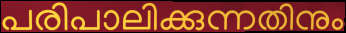
പരിപാലിക്കുന്നതിനും